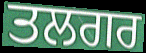
ਤਲਗਰ